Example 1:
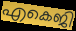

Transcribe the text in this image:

എകെജി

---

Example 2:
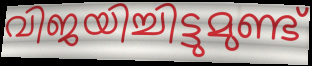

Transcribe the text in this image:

വിജയിച്ചിട്ടുമുണ്ട്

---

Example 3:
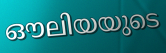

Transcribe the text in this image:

ഔലിയയുടെ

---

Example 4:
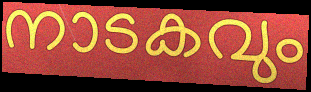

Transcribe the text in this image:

നാടകവും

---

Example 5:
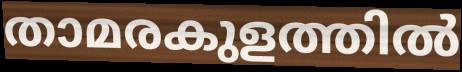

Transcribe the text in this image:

താമരകുളത്തിൽ